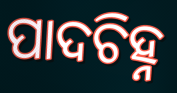
ପାଦଚିହ୍ନ